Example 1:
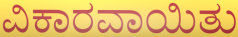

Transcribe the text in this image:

ವಿಕಾರವಾಯಿತು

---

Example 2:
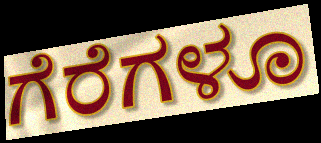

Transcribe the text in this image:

ಗೆರೆಗಳೂ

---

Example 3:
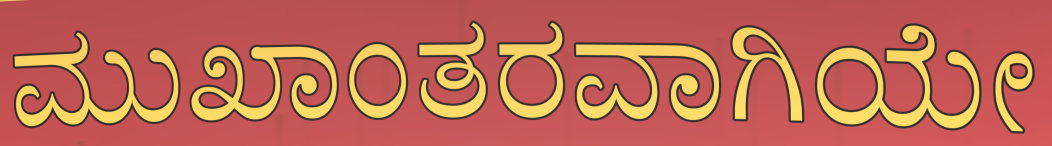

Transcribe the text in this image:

ಮುಖಾಂತರವಾಗಿಯೇ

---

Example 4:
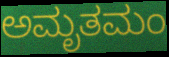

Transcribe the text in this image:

ಅಮೃತಮಂ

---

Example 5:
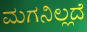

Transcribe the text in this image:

ಮಗನಿಲ್ಲದೆ